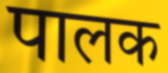
पालक